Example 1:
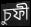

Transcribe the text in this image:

চুফী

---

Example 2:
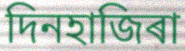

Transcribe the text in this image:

দিনহাজিৰা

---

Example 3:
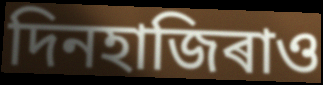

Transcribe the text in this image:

দিনহাজিৰাও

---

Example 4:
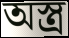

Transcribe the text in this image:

অস্ত্ৰ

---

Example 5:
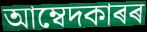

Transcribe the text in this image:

আম্বেদকাৰৰ